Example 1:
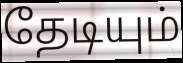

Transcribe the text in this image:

தேடியும்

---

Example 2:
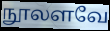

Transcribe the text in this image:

நூலளவே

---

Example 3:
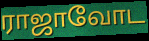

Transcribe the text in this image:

ராஜாவோட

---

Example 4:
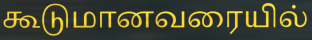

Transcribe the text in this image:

கூடுமானவரையில்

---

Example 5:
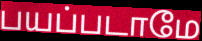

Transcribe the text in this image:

பயப்படாமே